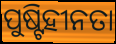
ପୁଷ୍ଟିହୀନତା